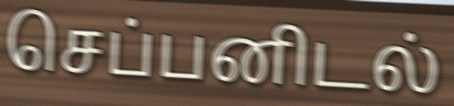
செப்பனிடல்